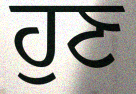
ਹੁਣ